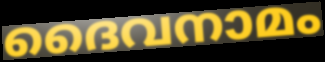
ദൈവനാമം